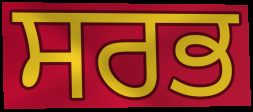
ਸਰਭ